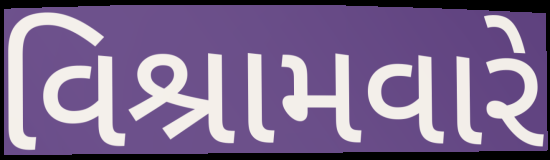
વિશ્રામવારે